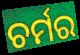
ଚର୍ମର